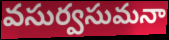
వసుర్వసుమనా